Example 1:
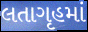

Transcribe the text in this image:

લતાગૃહમાં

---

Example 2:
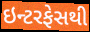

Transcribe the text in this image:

ઇન્ટરફેસથી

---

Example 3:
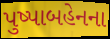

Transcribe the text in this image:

પુષ્પાબહેનના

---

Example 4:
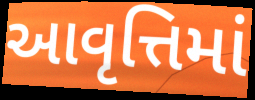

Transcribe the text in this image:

આવૃત્તિમાં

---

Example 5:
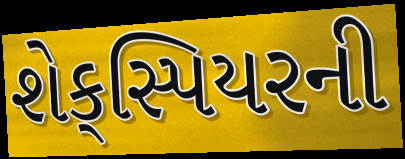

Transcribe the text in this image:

શેક્‌સ્પિયરની